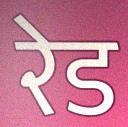
रेड